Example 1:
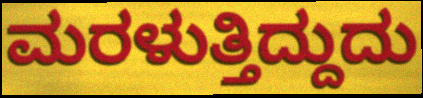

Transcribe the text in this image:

ಮರಳುತ್ತಿದ್ದುದು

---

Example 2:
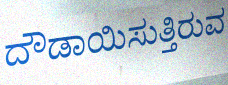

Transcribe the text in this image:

ದೌಡಾಯಿಸುತ್ತಿರುವ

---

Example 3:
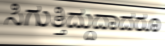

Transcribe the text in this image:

ಸಿಗುತ್ತಿದ್ದುದಾದರೂ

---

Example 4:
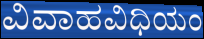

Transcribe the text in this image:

ವಿವಾಹವಿಧಿಯಂ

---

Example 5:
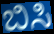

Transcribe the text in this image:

ಬಿಸಿ